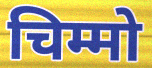
चिम्मो